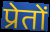
प्रेतों